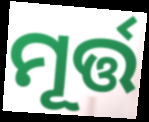
ମୂର୍ତ୍ତ